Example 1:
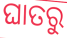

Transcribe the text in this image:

ଘାତରୁ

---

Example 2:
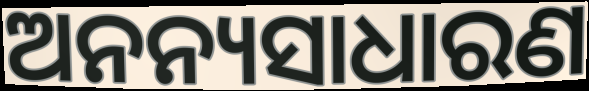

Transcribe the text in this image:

ଅନନ୍ୟସାଧାରଣ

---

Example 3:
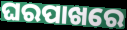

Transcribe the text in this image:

ଘରପାଖରେ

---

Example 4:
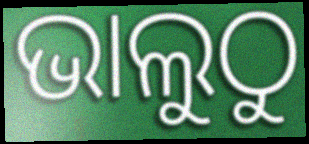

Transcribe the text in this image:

ଭାଲୁଠୁ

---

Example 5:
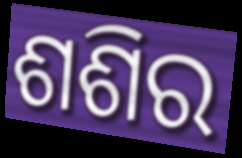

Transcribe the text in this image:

ଶଶିର